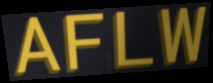
AFLW